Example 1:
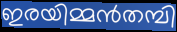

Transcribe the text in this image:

ഇരയിമ്മൻതമ്പി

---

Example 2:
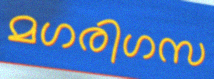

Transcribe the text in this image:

മഗരിഗസ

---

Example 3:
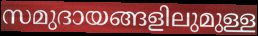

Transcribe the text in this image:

സമുദായങ്ങളിലുമുള്ള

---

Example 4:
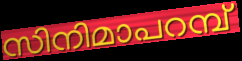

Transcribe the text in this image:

സിനിമാപറമ്പ്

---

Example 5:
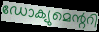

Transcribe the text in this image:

ഡോക്യുമെന്ററി